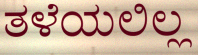
ತಳೆಯಲಿಲ್ಲ